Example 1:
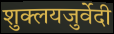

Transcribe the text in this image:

शुक्लयजुर्वेदी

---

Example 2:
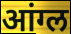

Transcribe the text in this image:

आंग्ल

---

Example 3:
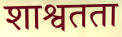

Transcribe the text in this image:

शाश्वतता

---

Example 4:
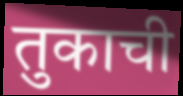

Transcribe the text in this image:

तुकाची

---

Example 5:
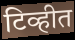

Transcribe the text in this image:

टिव्हीत